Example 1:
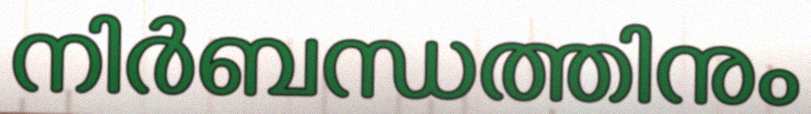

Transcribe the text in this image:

നിർബന്ധത്തിനും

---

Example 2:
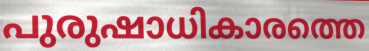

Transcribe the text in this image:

പുരുഷാധികാരത്തെ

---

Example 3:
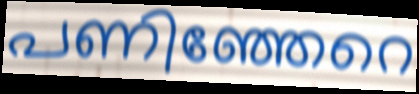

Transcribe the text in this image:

പണിഞ്ഞേറെ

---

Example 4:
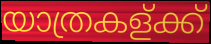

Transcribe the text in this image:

യാത്രകള്ക്ക്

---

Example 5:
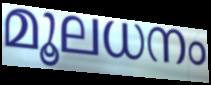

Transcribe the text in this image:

മൂലധനം